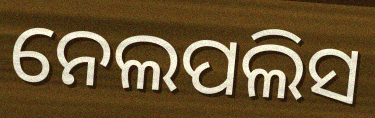
ନେଲପଲିସ